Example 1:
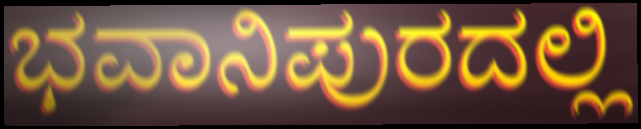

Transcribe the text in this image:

ಭವಾನಿಪುರದಲ್ಲಿ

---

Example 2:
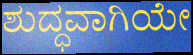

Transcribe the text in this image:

ಶುದ್ಧವಾಗಿಯೇ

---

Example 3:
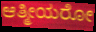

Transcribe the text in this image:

ಆತ್ಮೀಯರೋ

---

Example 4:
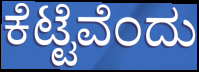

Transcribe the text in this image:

ಕೆಟ್ಟೆವೆಂದು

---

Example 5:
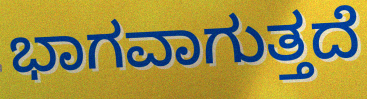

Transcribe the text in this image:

ಭಾಗವಾಗುತ್ತದೆ